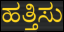
ಹತ್ತಿಸು